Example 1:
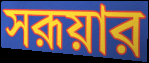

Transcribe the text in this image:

সরূয়ার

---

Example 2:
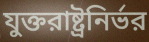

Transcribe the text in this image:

যুক্তরাষ্ট্রনির্ভর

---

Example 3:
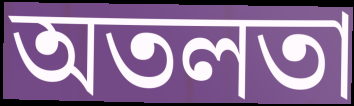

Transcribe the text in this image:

অতলতা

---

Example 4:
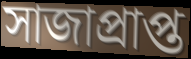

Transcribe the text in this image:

সাজাপ্রাপ্ত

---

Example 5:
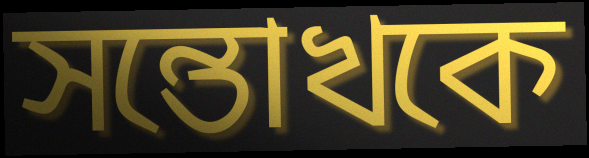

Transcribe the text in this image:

সন্তোখকে